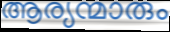
ആര്യന്മാരും